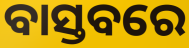
ବାସ୍ତବରେ